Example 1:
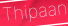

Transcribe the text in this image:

Thipaan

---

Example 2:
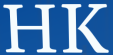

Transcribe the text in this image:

HK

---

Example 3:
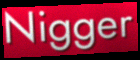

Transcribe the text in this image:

Nigger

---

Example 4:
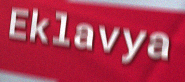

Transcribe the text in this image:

Eklavya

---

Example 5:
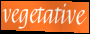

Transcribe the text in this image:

vegetative